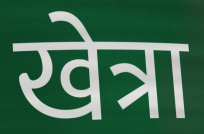
खेत्रा